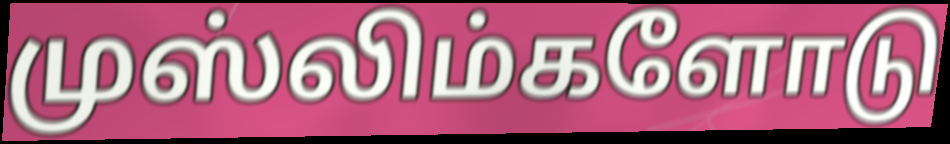
முஸ்லிம்களோடு